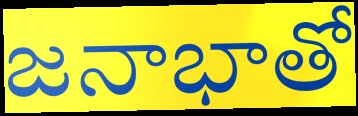
జనాభాతో